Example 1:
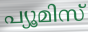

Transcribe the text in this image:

പ്യൂമിസ്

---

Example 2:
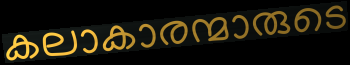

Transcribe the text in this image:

കലാകാരന്മാരുടെ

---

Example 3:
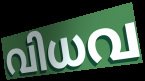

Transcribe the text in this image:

വിധവ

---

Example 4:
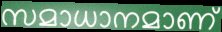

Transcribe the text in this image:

സമാധാനമാണ്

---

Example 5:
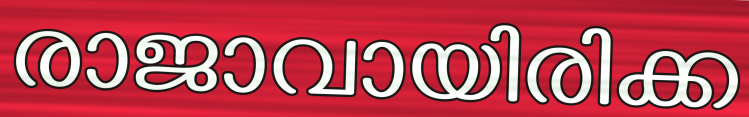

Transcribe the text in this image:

രാജാവായിരിക്ക